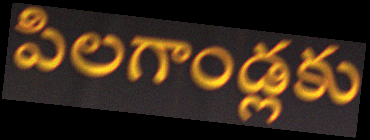
పిలగాండ్లకు